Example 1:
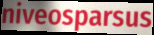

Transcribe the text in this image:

niveosparsus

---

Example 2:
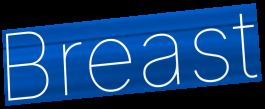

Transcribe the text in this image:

Breast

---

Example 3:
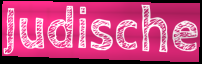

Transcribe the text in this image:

Judische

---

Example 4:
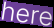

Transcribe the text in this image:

here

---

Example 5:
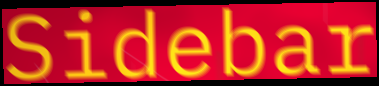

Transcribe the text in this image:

Sidebar